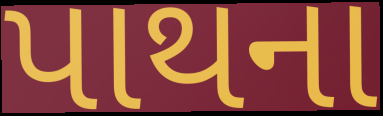
પાથના